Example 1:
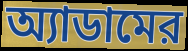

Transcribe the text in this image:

অ্যাডামের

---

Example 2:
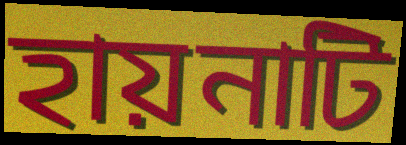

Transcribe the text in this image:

হায়নাটি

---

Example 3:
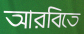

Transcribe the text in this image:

আরবিতে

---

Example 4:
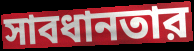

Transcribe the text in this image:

সাবধানতার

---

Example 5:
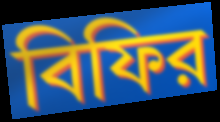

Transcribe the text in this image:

বিফির